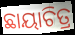
ଛାୟାଚିତ୍ର